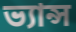
ভ্যান্স